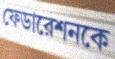
ফেডারেশনকে